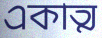
একাত্ম